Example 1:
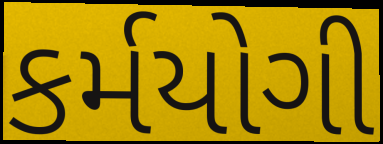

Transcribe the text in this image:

કર્મયોગી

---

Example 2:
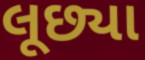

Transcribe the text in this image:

લૂછ્યા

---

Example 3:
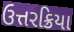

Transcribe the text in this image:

ઉત્તરક્રિયા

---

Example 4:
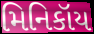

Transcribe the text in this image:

મિનિકૉય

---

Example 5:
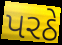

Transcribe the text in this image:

પરઠે